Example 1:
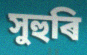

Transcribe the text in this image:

সুহুৰি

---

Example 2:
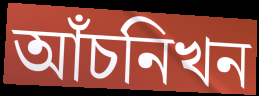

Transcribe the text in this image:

আঁচনিখন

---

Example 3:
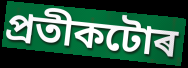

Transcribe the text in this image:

প্ৰতীকটোৰ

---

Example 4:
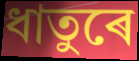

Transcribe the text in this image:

ধাতুৰে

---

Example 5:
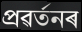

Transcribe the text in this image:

প্ৰৱৰ্তনৰ